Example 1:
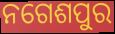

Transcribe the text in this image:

ନଗେଶପୁର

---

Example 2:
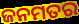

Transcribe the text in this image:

ଜନମତର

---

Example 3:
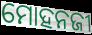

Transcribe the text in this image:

ମୋହନଜୀ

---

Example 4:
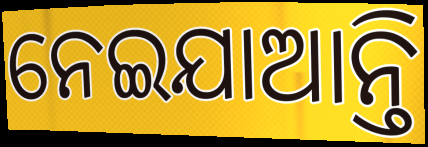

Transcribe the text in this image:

ନେଇଯାଆନ୍ତି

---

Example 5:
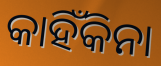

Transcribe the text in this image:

କାହିଁକିନା